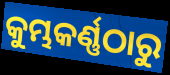
କୁମ୍ଭକର୍ଣ୍ଣଠାରୁ